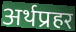
अर्थप्रहर